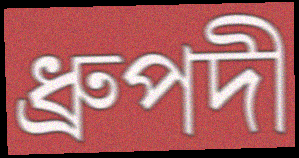
ধ্ৰুপদী